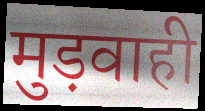
मुड़वाही